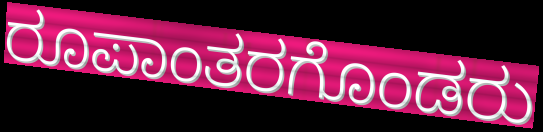
ರೂಪಾಂತರಗೊಂಡರು